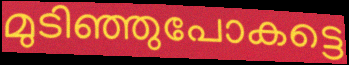
മുടിഞ്ഞുപോകട്ടെ